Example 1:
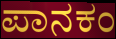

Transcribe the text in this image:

ಪಾನಕಂ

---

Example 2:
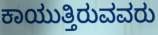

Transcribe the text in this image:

ಕಾಯುತ್ತಿರುವವರು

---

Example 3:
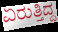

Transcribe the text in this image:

ಏರುತ್ತಿದ್ದ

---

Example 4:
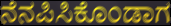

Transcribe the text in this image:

ನೆನಪಿಸಿಕೊಂಡಾಗ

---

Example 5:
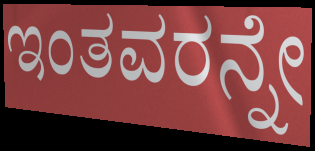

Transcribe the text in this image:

ಇಂತವರನ್ನೇ